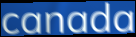
canada